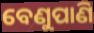
ବେଣୁପାଣି